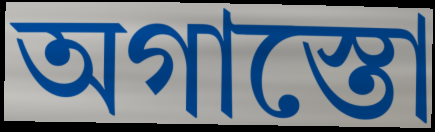
অগাস্তো